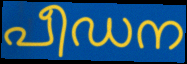
പീഡന